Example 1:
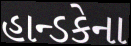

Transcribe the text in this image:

હાન્ડકેના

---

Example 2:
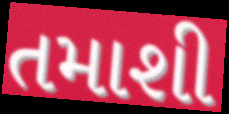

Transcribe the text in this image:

તમાશી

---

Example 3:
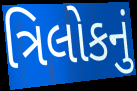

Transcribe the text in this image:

ત્રિલોકનું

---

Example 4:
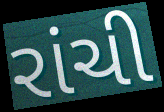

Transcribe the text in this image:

રાંચી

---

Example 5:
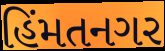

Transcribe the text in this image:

હિંમતનગર